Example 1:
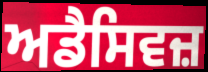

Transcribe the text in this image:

ਅਡੈਸਿਵਜ਼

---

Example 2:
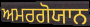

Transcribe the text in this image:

ਅਮਰਗੋਯਾਨ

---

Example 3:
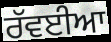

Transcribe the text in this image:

ਰੱਵਈਆ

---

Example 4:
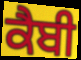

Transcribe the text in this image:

ਕੈਬੀ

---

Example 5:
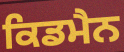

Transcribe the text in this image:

ਕਿਡਮੈਨ